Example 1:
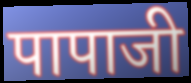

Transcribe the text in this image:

पापाजी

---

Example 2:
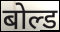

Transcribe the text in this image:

बोल्ड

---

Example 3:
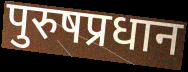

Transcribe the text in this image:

पुरुषप्रधान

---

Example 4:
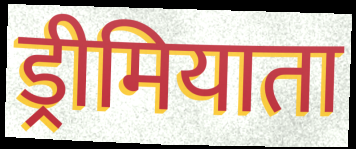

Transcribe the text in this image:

ड्रीमियाता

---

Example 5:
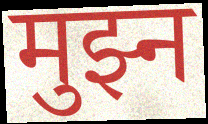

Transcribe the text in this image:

मुझ्न